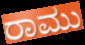
ರಾಮು